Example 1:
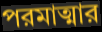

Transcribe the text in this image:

পরমাত্মার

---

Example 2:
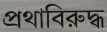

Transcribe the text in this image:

প্রথাবিরুদ্ধ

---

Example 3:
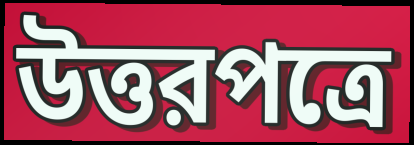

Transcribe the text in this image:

উত্তরপত্রে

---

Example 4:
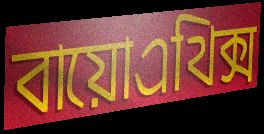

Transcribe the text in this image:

বায়োএথিক্স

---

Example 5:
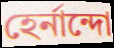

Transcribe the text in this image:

হের্নান্দো